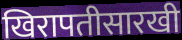
खिरापतीसारखी